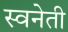
स्वनेती